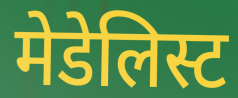
मेडेलिस्ट